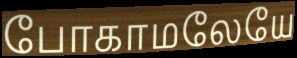
போகாமலேயே